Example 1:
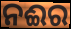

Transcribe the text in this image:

ନଈର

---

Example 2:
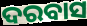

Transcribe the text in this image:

ଦରବାସ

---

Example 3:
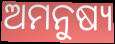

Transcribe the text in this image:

ଅମନୁଷ୍ୟ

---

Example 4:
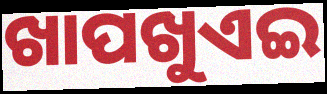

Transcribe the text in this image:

ଖାପଖୁଏଇ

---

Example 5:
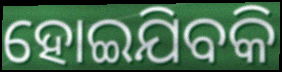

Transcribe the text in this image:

ହୋଇଯିବକି